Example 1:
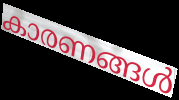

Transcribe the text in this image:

കാരണങ്ങൾ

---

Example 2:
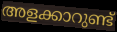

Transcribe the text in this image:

അളക്കാറുണ്ട്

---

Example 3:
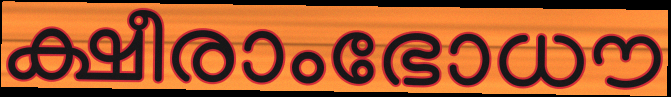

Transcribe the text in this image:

ക്ഷീരാംഭോധൗ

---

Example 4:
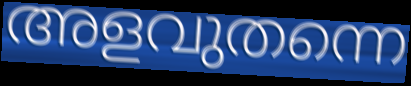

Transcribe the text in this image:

അളവുതന്നെ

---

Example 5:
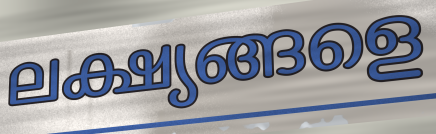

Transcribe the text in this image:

ലക്ഷ്യങ്ങളെ